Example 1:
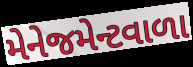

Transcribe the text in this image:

મેનેજમેન્ટવાળા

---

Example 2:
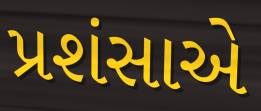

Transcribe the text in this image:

પ્રશંસાએ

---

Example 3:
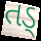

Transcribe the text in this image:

તડ્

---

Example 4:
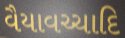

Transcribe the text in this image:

વૈયાવચ્ચાદિ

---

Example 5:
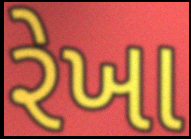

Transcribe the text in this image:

રેખા